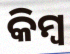
କିମ୍ବ